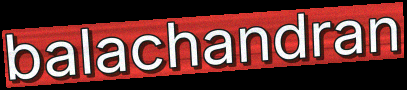
balachandran